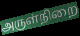
அருள்நிறை